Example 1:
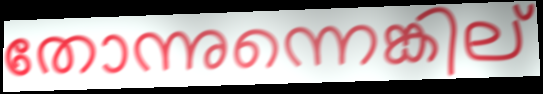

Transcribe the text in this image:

തോന്നുന്നെങ്കില്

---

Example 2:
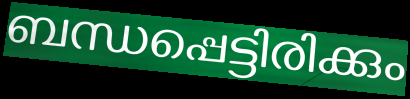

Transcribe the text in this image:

ബന്ധപ്പെട്ടിരിക്കും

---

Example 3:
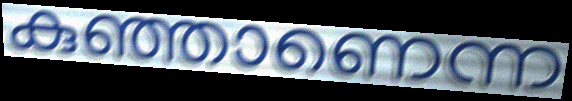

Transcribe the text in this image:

കുഞ്ഞാണെന്ന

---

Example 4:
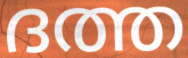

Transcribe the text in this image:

ദത്ത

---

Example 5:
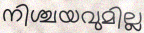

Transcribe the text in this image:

നിശ്ചയവുമില്ല